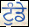
ਟੁੰਡੇ